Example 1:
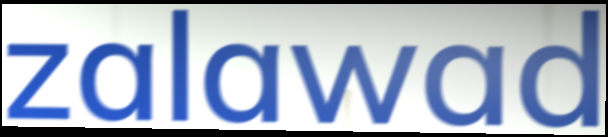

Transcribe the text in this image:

zalawad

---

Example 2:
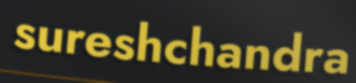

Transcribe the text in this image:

sureshchandra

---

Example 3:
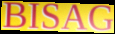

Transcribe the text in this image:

BISAG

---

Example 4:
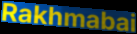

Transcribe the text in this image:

Rakhmabai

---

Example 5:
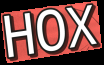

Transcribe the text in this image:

HOX